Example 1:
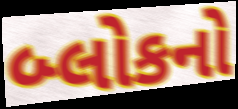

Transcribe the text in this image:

બ્લોકનો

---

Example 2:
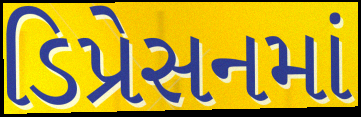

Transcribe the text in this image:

ડિપ્રેસનમાં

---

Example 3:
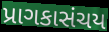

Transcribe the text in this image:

પ્રાગકાસંચય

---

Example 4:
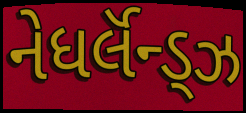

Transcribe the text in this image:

નેધર્લૅન્ડ્ઝ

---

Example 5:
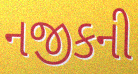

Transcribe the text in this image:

નજીકની